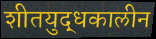
शीतयुद्धकालीन